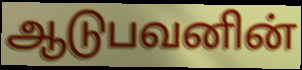
ஆடுபவனின்